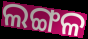
ଲଙ୍ଗଳ